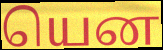
யென